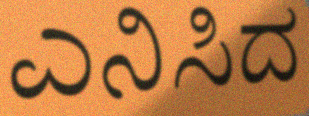
ಎನಿಸಿದ